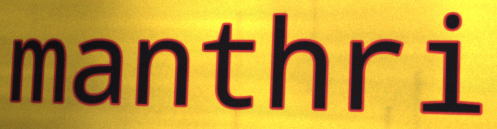
manthri